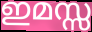
ഇമസ്സ